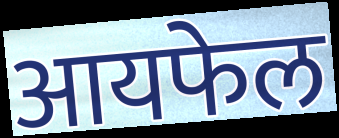
आयफेल